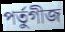
পর্তুগীজ